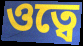
ওত্বে